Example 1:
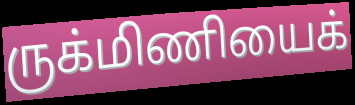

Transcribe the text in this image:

ருக்மிணியைக்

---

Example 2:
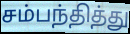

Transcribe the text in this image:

சம்பந்தித்து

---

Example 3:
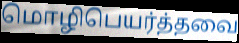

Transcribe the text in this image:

மொழிபெயர்த்தவை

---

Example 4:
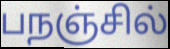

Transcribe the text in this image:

பநஞ்சில்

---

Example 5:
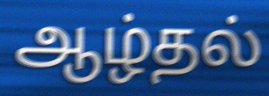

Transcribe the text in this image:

ஆழ்தல்